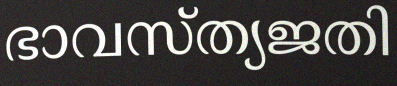
ഭാവസ്ത്യജതി